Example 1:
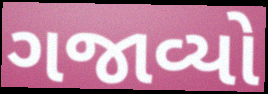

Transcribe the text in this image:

ગજાવ્યો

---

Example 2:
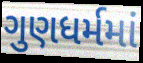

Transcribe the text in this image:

ગુણધર્મમાં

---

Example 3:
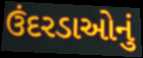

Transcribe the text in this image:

ઉંદરડાઓનું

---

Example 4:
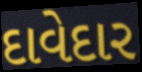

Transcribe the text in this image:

દાવેદાર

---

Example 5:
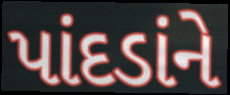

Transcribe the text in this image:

પાંદડાંને